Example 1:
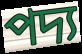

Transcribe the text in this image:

পদ্য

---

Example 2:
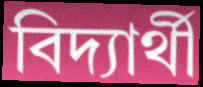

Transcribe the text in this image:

বিদ্যার্থী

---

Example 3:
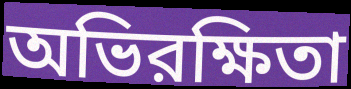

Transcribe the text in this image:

অভিরক্ষিতা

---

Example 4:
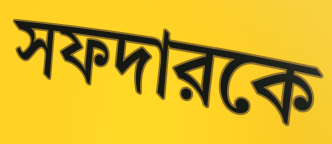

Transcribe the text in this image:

সফদারকে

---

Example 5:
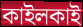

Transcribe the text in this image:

কাইলকাই